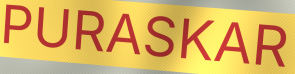
PURASKAR